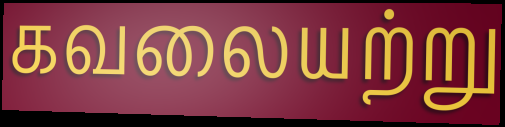
கவலையற்று